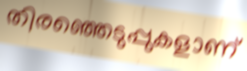
തിരഞ്ഞെടുപ്പുകളാണ്